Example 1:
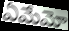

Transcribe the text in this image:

ఏమేమో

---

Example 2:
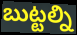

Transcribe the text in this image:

బుట్టల్ని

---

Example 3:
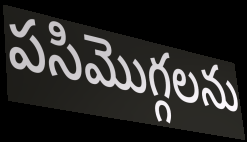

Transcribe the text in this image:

పసిమొగ్గలను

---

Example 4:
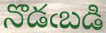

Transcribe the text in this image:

నొడఁబడి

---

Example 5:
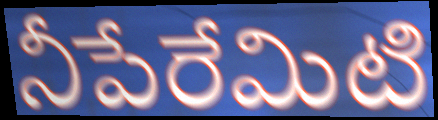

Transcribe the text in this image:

నీపేరేమిటి